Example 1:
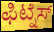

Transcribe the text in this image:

ಫಿಟ್ನೆಸ್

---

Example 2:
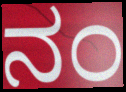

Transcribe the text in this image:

ನಂ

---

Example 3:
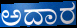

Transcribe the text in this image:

ಅದಾರ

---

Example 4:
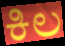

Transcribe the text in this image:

ಕಿಲ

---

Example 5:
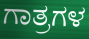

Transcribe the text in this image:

ಗಾತ್ರಗಳ